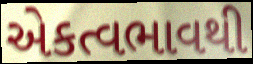
એકત્વભાવથી